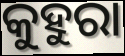
କୁହୁରା